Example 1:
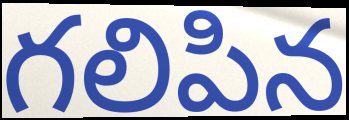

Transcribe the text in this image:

గలిపిన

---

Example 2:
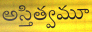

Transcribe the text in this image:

అస్తిత్వమూ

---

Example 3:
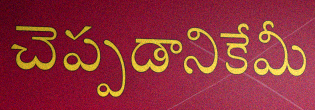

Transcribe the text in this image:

చెప్పడానికేమీ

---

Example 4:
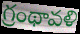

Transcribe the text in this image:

గ్రంథావళి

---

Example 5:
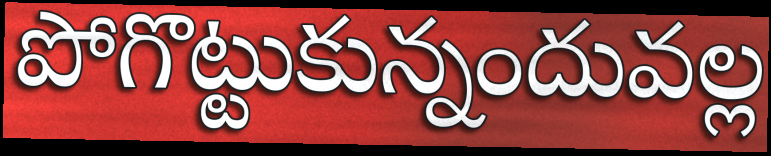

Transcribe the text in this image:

పోగొట్టుకున్నందువల్ల